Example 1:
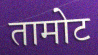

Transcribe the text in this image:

तामोट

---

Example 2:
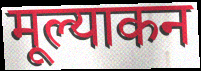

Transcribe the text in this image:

मूल्याकन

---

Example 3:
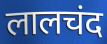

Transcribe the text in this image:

लालचंद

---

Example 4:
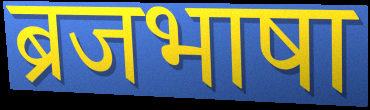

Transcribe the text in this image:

ब्रजभाषा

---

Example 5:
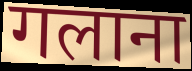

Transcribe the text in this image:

गलाना